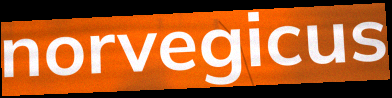
norvegicus